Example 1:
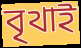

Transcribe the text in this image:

বৃথাই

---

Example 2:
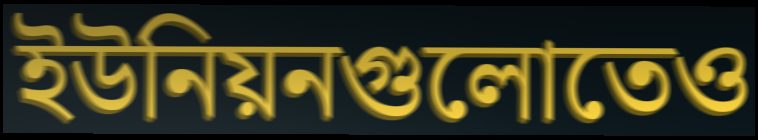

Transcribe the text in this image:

ইউনিয়নগুলোতেও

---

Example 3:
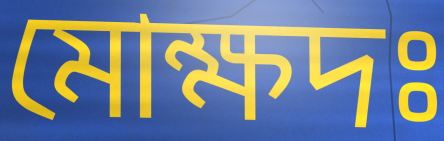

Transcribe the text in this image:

মোক্ষদঃ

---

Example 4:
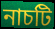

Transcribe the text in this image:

নাচটি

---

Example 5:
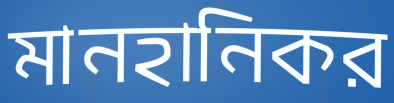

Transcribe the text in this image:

মানহানিকর